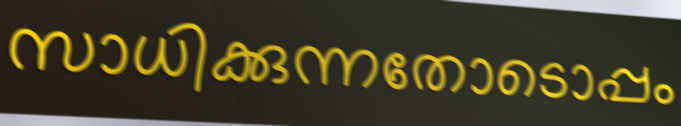
സാധിക്കുന്നതോടൊപ്പം